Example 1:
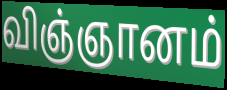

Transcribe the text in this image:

விஞ்ஞானம்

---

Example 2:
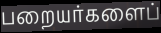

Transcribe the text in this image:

பறையர்களைப்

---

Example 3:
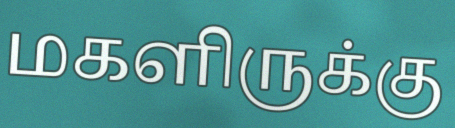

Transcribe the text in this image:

மகளிருக்கு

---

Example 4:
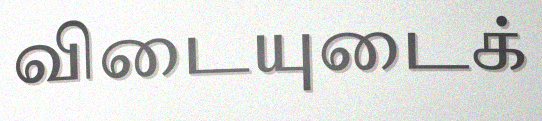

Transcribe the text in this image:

விடையுடைக்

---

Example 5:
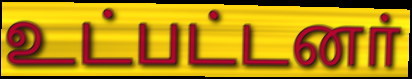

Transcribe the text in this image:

உட்பட்டனர்